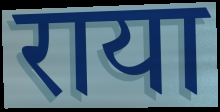
राया